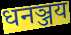
धनञ्जय